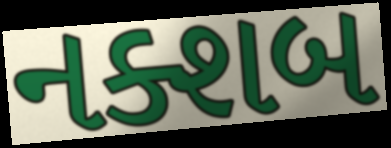
નક્શબ